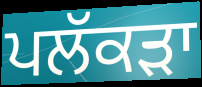
ਪਲੱਕੜਾ